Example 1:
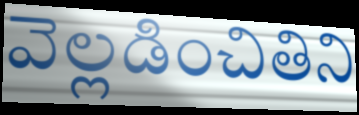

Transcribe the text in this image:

వెల్లడించితిని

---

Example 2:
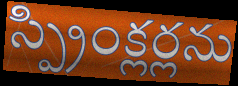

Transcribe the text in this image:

స్ప్రింక్లర్లను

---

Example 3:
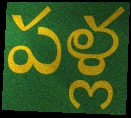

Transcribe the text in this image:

పళ్ల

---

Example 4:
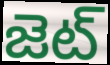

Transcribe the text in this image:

జెట్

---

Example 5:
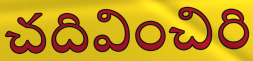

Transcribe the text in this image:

చదివించిరి